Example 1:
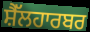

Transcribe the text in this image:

ਸ਼ੈੱਲਹਾਰਬਰ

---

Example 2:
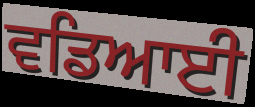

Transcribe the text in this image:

ਵਡਿਆਈ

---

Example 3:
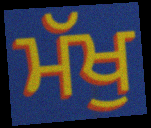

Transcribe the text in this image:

ਮੱਖੁ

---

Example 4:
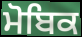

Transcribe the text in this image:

ਮੋਬਿਕ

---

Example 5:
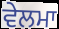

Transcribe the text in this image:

ਵੇਲਮਾ